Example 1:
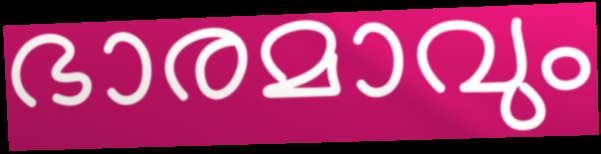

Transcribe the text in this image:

ഭാരമാവും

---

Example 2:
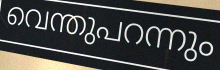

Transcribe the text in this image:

വെന്തുപറന്നും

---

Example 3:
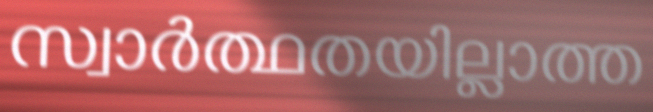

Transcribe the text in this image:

സ്വാർത്ഥതയില്ലാത്ത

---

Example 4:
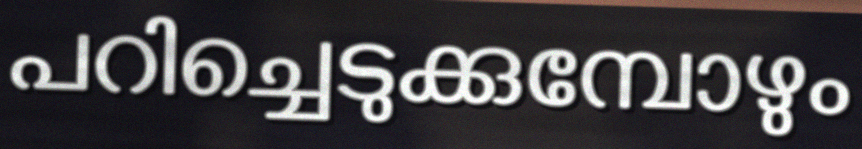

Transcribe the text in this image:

പറിച്ചെടുക്കുമ്പോഴും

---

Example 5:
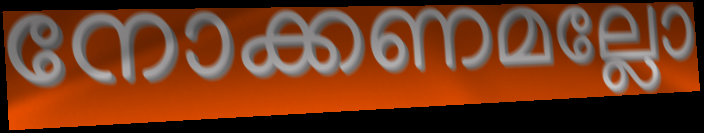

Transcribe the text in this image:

നോക്കണമല്ലോ